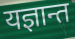
यज्ञान्त